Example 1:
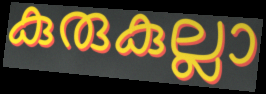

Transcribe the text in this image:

കുരുകുല്ലാ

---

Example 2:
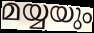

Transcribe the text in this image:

മയ്യയും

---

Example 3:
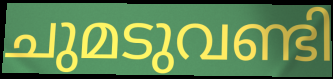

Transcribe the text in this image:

ചുമടുവണ്ടി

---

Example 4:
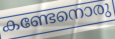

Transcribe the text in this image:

കണ്ടേനൊരു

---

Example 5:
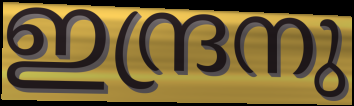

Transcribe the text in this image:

ഇന്ദ്രനു